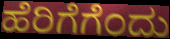
ಹೆರಿಗೆಗೆಂದು